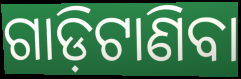
ଗାଡ଼ିଟାଣିବା